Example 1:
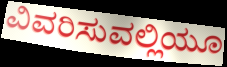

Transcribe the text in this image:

ವಿವರಿಸುವಲ್ಲಿಯೂ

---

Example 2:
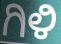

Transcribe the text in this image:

ಗಿಳಿ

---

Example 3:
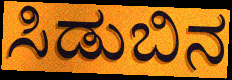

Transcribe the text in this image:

ಸಿಡುಬಿನ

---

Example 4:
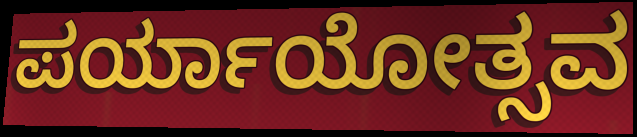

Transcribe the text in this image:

ಪರ್ಯಾಯೋತ್ಸವ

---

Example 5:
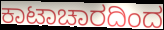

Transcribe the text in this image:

ಕಾಟಾಚಾರದಿಂದ